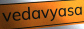
vedavyasa